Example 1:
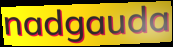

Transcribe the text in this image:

nadgauda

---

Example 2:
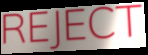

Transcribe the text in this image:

REJECT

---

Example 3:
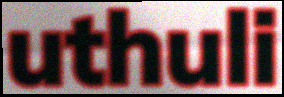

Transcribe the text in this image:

uthuli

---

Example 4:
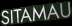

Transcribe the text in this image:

SITAMAU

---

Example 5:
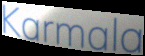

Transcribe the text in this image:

Karmala